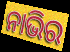
ନାଭିର